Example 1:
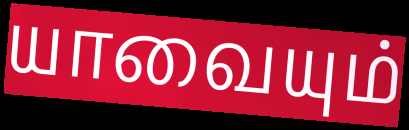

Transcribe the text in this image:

யாவையும்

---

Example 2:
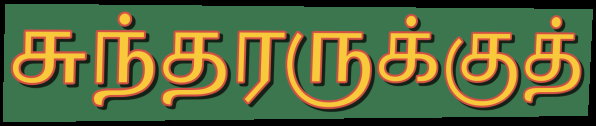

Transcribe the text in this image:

சுந்தரருக்குத்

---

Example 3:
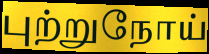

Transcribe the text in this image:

புற்றுநோய்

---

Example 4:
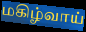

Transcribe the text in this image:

மகிழ்வாய்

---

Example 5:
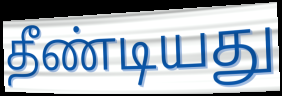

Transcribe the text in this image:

தீண்டியது